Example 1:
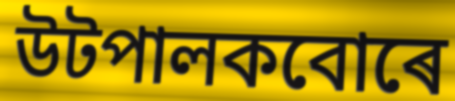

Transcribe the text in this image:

উটপালকবোৰে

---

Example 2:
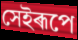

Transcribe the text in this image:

সেইৰূপে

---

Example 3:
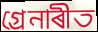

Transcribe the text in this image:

গ্ৰেনাৰীত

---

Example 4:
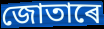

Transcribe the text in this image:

জোতাৰে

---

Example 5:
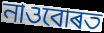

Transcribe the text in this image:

নাওবোৰত